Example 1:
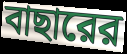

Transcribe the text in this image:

বাছারের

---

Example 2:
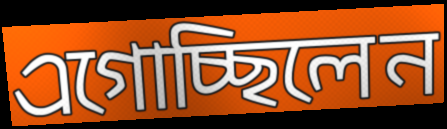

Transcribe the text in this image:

এগোচ্ছিলেন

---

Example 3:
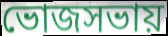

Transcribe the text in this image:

ভোজসভায়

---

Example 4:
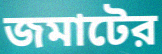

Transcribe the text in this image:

জমাটের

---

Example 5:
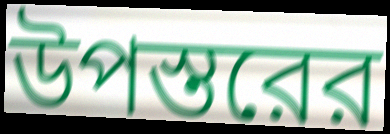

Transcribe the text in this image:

উপস্তরের